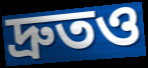
দ্রুতও